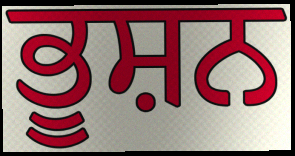
ਭੂਸ਼ਨ